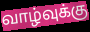
வாழ்வுக்கு